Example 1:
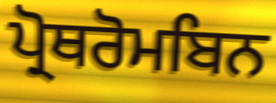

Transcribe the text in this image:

ਪ੍ਰੋਥਰੋਮਬਿਨ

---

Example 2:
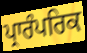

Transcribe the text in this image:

ਪ੍ਰਾਰੰਪਰਿਕ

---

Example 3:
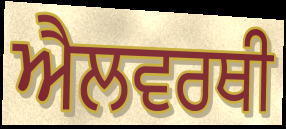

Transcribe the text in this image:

ਐਲਵਰਥੀ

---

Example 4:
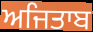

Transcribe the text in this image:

ਅਜਿਤਾਬ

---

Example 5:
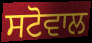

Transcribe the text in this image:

ਸਟੋਵਾਲ